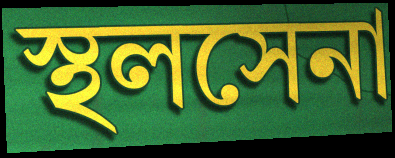
স্থলসেনা